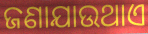
ଜଣାଯାଉଥାଏ